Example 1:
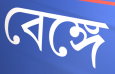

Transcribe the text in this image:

বেঙ্গে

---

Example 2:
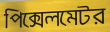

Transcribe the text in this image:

পিক্সেলমেটর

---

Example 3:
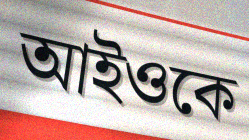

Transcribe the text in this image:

আইওকে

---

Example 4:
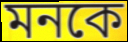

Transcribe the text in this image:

মনকে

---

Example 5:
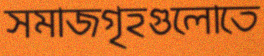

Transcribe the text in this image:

সমাজগৃহগুলোতে